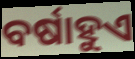
ବର୍ଷାହୁଏ